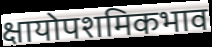
क्षायोपशमिकभाव